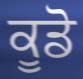
ਕੂਡੋ